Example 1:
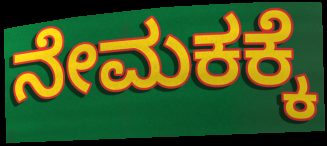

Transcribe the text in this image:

ನೇಮಕಕ್ಕೆ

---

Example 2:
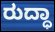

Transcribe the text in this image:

ರುದ್ಧಾ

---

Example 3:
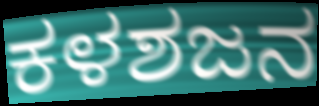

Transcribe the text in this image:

ಕಳಶಜನ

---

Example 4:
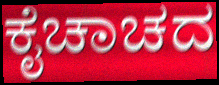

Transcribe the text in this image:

ಕೈಚಾಚದ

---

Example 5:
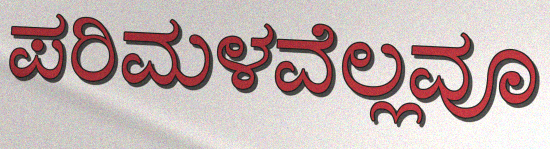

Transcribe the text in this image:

ಪರಿಮಳವೆಲ್ಲವೂ